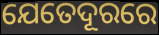
ଯେତେଦୂରରେ